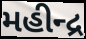
મહીન્દ્ર